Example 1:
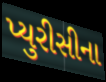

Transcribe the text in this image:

પ્યુરીસીના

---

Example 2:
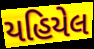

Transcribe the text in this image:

યહિયેલ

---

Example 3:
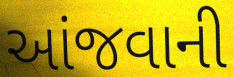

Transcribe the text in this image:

આંજવાની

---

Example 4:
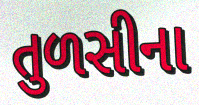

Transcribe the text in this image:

તુળસીના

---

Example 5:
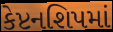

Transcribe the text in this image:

કેપ્ટનશિપમાં